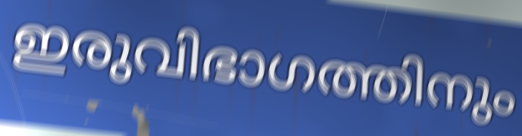
ഇരുവിഭാഗത്തിനും